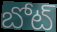
బోట్